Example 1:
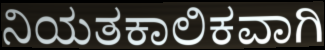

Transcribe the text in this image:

ನಿಯತಕಾಲಿಕವಾಗಿ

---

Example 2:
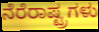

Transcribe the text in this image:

ನೆರೆರಾಷ್ಟ್ರಗಳು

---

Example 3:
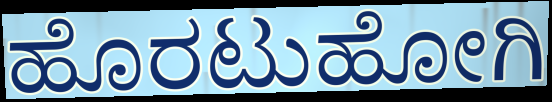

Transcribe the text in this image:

ಹೊರಟುಹೋಗಿ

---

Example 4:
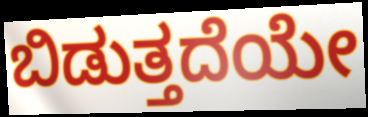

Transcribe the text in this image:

ಬಿಡುತ್ತದೆಯೇ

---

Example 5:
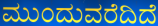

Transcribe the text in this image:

ಮುಂದುವರೆದಿದೆ